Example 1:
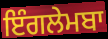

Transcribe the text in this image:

ਇੰਗਲੇਮਬਾ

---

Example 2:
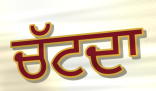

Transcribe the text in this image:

ਚੱਟਦਾ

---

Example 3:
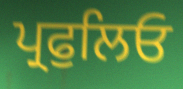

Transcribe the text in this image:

ਪ੍ਰਫੁਲਿਓ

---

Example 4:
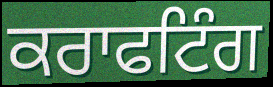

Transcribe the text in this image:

ਕਰਾਫਟਿੰਗ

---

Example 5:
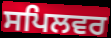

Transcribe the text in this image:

ਸਪਿਲਵਰ